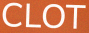
CLOT